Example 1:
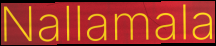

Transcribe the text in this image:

Nallamala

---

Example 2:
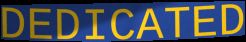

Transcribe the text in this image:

DEDICATED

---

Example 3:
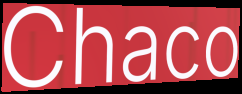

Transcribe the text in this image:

Chaco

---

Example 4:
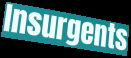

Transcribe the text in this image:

Insurgents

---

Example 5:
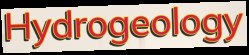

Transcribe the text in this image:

Hydrogeology